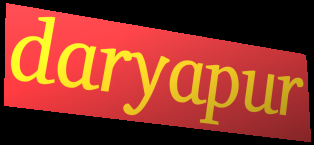
daryapur